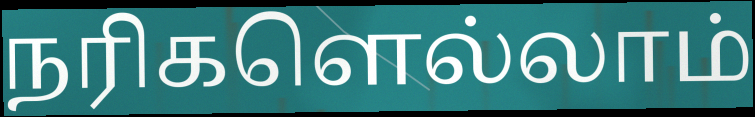
நரிகளெல்லாம்